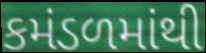
કમંડળમાંથી